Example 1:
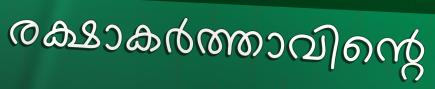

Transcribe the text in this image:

രക്ഷാകർത്താവിന്റെ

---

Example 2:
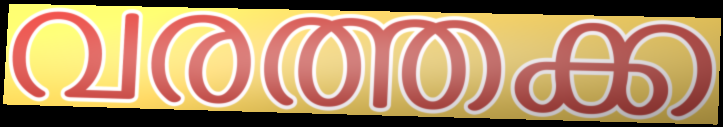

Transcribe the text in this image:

വരത്തക്ക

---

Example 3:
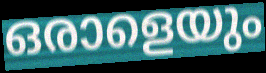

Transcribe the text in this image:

ഒരാളെയും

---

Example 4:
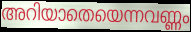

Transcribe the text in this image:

അറിയാതെയെന്നവണ്ണം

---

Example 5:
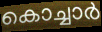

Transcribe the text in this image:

കൊച്ചാർ